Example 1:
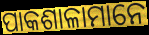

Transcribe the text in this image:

ପାକଶାଳାମାନେ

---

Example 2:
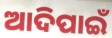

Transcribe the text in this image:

ଆଦିପାଇଁ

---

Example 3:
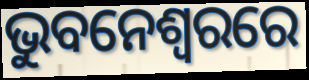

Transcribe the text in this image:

ଭୁବନେଶ୍ୱରରେ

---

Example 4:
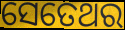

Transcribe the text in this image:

ସେତେଥର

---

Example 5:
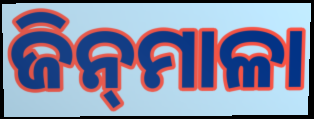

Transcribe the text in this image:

ଜିନ୍‌ମାଳା